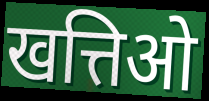
खत्तिओ